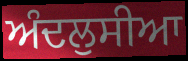
ਅੰਦਲੁਸੀਆ